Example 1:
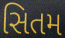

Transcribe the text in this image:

સિતમ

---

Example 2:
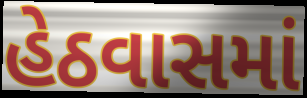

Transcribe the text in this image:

હેઠવાસમાં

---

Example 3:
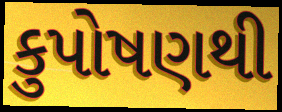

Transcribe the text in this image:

કુપોષણથી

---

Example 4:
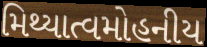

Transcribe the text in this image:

મિથ્યાત્વમોહનીય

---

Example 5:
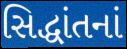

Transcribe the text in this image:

સિદ્ધાંતનાં